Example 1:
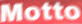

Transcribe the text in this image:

Motto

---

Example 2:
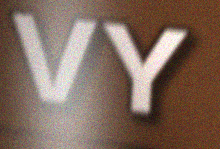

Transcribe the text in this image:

VY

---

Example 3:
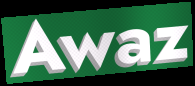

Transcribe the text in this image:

Awaz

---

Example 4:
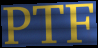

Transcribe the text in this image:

PTF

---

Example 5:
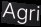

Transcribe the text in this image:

Agri